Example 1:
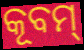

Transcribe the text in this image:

କୂବମ୍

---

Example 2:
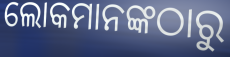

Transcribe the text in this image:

ଲୋକମାନଙ୍କଠାରୁ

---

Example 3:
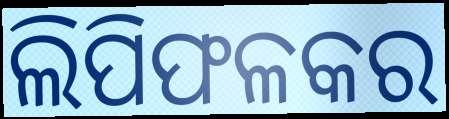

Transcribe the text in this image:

ଲିପିଫଳକର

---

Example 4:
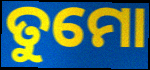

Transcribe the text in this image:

ତୁମୋ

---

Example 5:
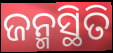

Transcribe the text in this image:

ଜନ୍ମସ୍ଥିତି